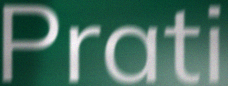
Prati